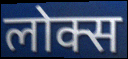
लोक्स